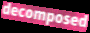
decomposed